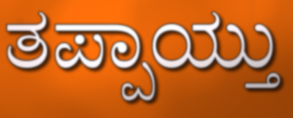
ತಪ್ಪಾಯ್ತು